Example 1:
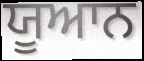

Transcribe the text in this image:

ਯੂਆਨ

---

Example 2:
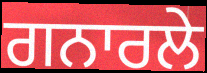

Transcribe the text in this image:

ਗਨਾਰਲੇ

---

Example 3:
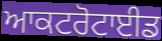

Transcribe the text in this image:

ਆਕਟਰੋਟਾਈਡ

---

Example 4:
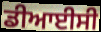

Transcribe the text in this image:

ਡੀਆਈਸੀ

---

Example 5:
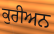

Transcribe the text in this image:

ਕੁਰੀਅਨ